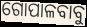
ଗୋପାଳବାବୁ